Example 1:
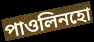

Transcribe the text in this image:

পাওলিনহো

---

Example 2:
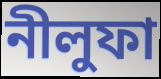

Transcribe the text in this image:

নীলুফা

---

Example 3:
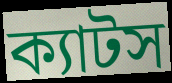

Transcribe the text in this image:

ক্যাটস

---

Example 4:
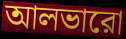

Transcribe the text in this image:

আলভারো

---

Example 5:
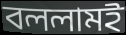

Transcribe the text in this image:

বললামই